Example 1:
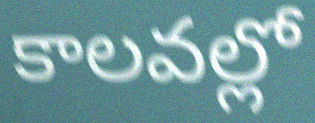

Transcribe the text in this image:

కాలవల్లో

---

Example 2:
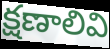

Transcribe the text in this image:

క్షణాలివి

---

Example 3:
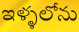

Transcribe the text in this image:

ఇళ్ళలోను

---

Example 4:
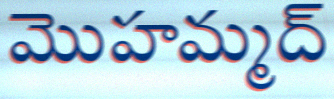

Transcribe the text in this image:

మొహమ్మద్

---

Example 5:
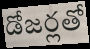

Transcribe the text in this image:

డోజర్లతో